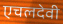
एचलदेवी